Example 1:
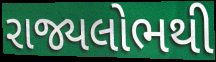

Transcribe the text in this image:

રાજ્યલોભથી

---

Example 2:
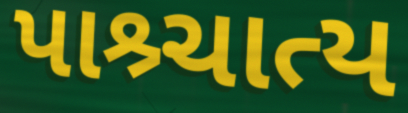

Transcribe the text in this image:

પાશ્ર્ચાત્ય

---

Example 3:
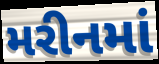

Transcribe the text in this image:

મરીનમાં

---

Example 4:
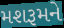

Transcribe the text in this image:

મશરૂમને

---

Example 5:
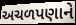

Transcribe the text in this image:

અચળપણાને